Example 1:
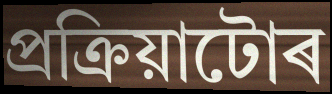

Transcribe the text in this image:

প্ৰক্ৰিয়াটোৰ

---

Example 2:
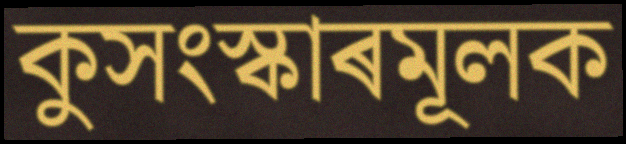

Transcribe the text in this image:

কুসংস্কাৰমূলক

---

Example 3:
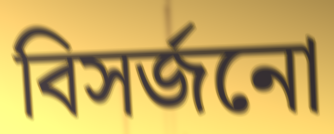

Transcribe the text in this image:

বিসৰ্জনো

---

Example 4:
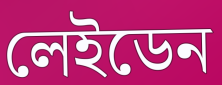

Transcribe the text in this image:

লেইডেন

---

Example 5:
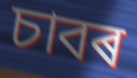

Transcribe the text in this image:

চাবৰ